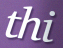
thi